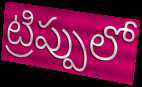
ట్రిప్పులో